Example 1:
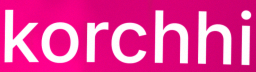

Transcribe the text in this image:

korchhi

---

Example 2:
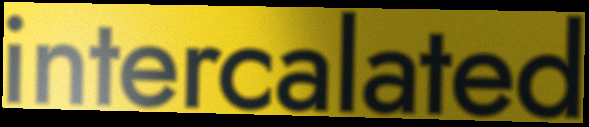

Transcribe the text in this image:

intercalated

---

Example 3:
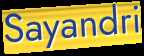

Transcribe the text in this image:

Sayandri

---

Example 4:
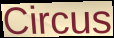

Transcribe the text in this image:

Circus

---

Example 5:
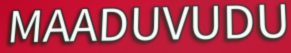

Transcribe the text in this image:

MAADUVUDU